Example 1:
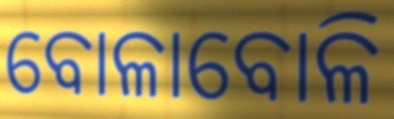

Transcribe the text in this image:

ବୋଳାବୋଳି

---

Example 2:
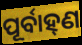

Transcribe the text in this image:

ପୂର୍ବାହ୍‌ଣ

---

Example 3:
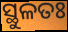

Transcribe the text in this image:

ସ୍ଥୁଳତଃ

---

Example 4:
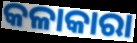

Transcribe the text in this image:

କଳାକାରା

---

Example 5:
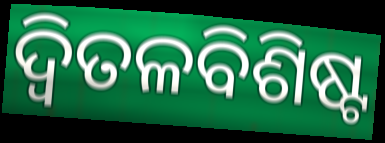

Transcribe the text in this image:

ଦ୍ୱିତଳବିଶିଷ୍ଟ